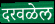
दरवळेल